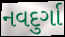
નવદુર્ગા